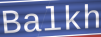
Balkh